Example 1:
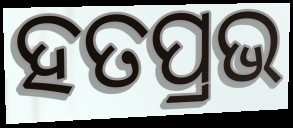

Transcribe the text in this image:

ହତପ୍ରଭ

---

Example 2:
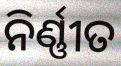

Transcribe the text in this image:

ନିର୍ଣ୍ଣୀତ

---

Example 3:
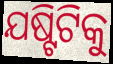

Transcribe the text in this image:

ଯଷ୍ଟିଟିକୁ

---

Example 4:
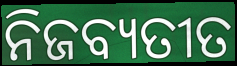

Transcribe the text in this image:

ନିଜବ୍ୟତୀତ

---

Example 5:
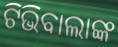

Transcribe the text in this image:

ଟିଭିବାଲାଙ୍କ